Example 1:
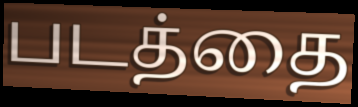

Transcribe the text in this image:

படத்தை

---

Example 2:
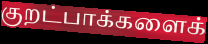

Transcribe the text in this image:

குறட்பாக்களைக்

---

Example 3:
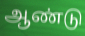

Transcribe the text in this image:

ஆண்டு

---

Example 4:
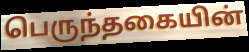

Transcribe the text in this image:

பெருந்தகையின்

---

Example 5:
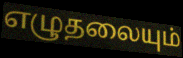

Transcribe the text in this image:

எழுதலையும்